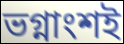
ভগ্নাংশই